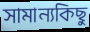
সামান্যকিছু